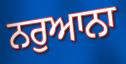
ਨਰੁਆਨਾ